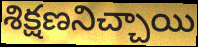
శిక్షణనిచ్చాయి